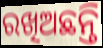
ରଖିଅଛନ୍ତି